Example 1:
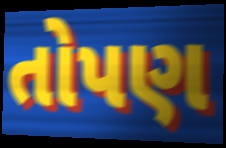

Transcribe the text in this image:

તોપણ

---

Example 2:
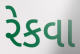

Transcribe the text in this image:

રેકવા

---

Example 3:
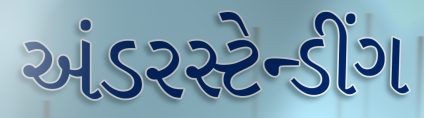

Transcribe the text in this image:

અંડરસ્ટેન્ડીંગ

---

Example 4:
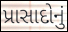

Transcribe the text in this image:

પ્રાસાદોનું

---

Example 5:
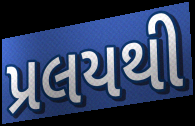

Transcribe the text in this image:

પ્રલયથી